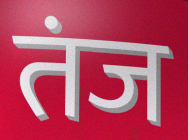
तंज